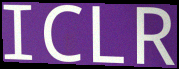
ICLR